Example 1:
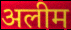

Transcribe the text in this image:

अलीम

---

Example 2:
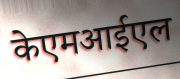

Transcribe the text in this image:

केएमआईएल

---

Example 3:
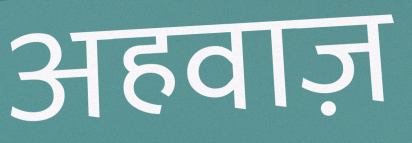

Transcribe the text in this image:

अहवाज़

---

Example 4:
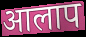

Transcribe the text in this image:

आलाप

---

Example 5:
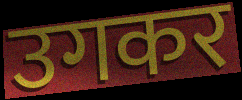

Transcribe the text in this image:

उगकर